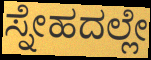
ಸ್ನೇಹದಲ್ಲೇ